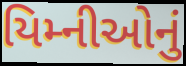
યિમ્નીઓનું